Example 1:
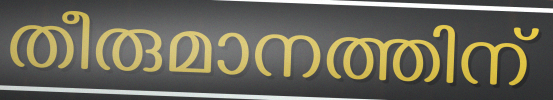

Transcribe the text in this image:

തീരുമാനത്തിന്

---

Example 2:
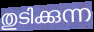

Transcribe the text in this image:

തുടിക്കുന്ന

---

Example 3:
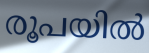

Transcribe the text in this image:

രൂപയിൽ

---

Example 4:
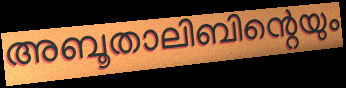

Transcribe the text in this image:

അബൂതാലിബിന്റെയും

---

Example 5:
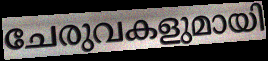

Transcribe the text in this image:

ചേരുവകളുമായി